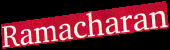
Ramacharan